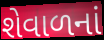
શેવાળનાં